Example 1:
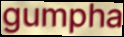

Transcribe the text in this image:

gumpha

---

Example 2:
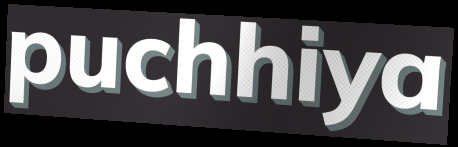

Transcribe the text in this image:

puchhiya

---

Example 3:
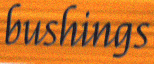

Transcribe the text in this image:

bushings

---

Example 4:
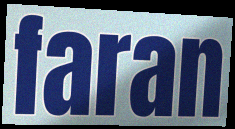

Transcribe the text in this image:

faran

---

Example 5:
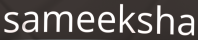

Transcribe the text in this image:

sameeksha